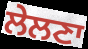
ਲੇਲਣਾ